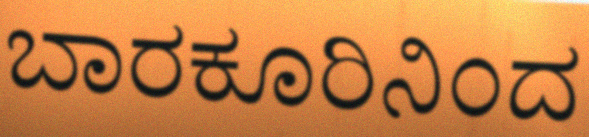
ಬಾರಕೂರಿನಿಂದ